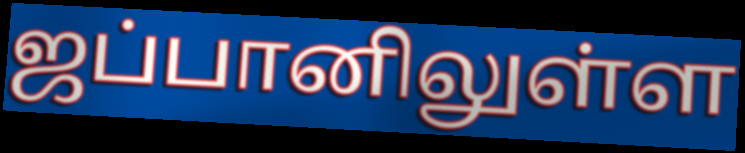
ஜப்பானிலுள்ள